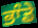
ਭਾੰਡੇ